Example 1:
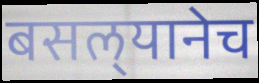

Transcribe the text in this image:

बसल्यानेच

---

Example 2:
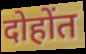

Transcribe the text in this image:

दोहोंत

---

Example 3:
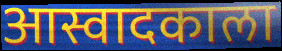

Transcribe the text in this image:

आस्वादकाला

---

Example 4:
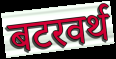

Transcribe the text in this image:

बटरवर्थ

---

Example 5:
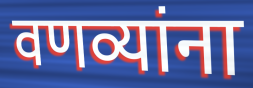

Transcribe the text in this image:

वणव्यांना